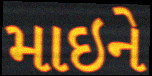
માઇને